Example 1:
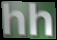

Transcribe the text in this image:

hh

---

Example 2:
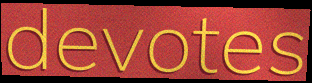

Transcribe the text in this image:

devotes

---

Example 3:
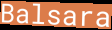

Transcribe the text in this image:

Balsara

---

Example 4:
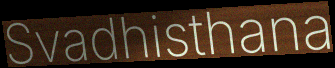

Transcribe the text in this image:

Svadhisthana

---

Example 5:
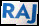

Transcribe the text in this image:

RAJ